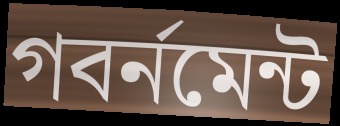
গবর্নমেন্ট